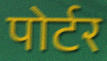
पोर्टर